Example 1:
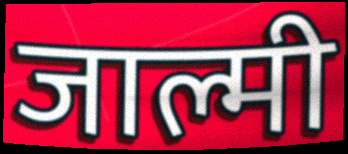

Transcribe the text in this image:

जाल्मी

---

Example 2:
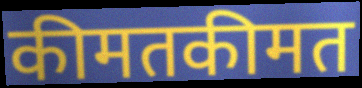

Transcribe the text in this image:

कीमतकीमत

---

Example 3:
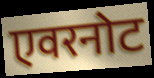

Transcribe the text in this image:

एवरनोट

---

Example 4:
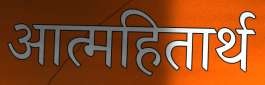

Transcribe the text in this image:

आत्महितार्थ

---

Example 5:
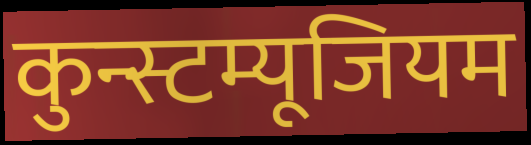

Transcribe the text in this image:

कुन्स्टम्यूजियम